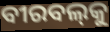
ବୀରବଲ୍‌କୁ